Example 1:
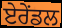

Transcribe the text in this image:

ਏਰੇਂਡਲ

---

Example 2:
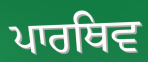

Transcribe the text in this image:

ਪਾਰਥਿਵ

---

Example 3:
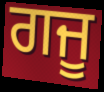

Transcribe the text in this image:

ਗਜੂ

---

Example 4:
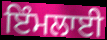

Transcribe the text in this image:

ਇੰਮਲਾਈ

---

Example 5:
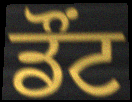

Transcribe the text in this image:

ਡੌਂਟ